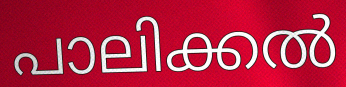
പാലിക്കൽ